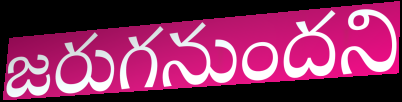
జరుగనుందని